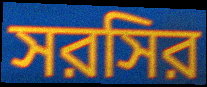
সরসির